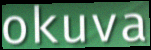
okuva